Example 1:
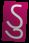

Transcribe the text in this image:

ડુ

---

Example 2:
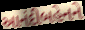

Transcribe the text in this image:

આનંદીબહેનને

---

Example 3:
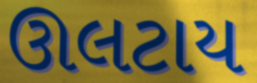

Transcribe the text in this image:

ઊલટાય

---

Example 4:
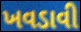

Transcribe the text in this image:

ખવડાવી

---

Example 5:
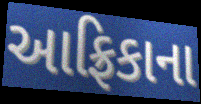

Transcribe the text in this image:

આફ્રિકાના